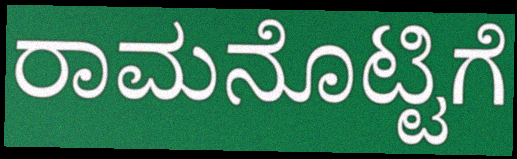
ರಾಮನೊಟ್ಟಿಗೆ